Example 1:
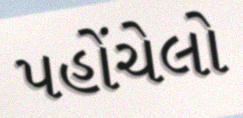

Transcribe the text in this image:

પહોંચેલો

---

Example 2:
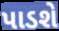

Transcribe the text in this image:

પાડશે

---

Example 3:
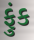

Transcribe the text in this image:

ફુંક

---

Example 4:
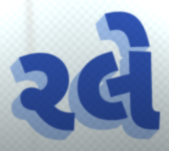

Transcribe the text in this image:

રલે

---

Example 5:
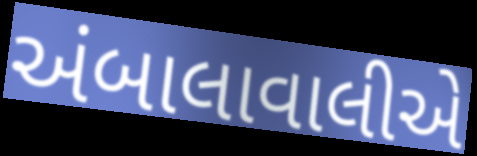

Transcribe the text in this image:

અંબાલાવાલીએ